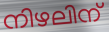
നിഴലിന്